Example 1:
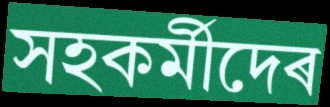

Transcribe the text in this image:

সহকৰ্মীদেৰ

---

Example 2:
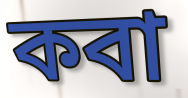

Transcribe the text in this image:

কবা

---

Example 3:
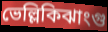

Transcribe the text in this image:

ভেল্লিকিঝাংগু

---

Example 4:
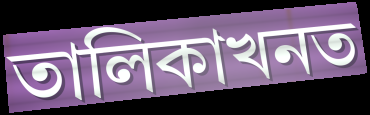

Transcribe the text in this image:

তালিকাখনত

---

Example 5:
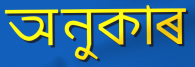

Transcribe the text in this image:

অনুকাৰ